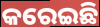
କରେଇଛି